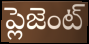
ప్లెజెంట్